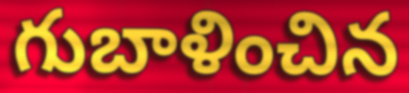
గుబాళించిన